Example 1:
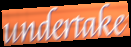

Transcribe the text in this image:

undertake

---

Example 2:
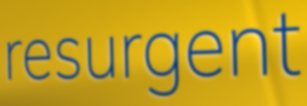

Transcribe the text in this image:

resurgent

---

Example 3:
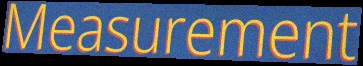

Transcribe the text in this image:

Measurement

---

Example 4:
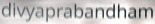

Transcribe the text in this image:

divyaprabandham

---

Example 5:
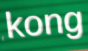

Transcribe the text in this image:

kong